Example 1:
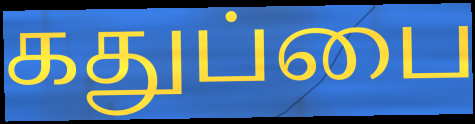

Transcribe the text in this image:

கதுப்பை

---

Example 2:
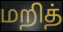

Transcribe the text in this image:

மறித்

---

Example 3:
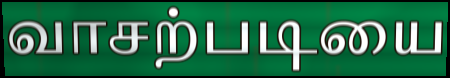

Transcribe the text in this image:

வாசற்படியை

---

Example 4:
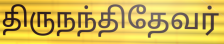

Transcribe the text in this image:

திருநந்திதேவர்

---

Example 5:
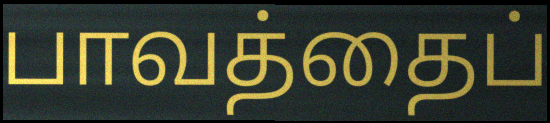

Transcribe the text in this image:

பாவத்தைப்